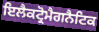
ਇਲੈਕਟ੍ਰੋਮੈਗਨੈਟਿਕ